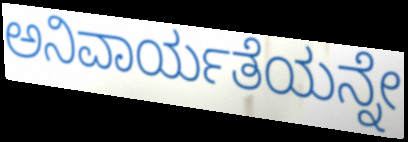
ಅನಿವಾರ್ಯತೆಯನ್ನೇ